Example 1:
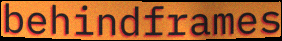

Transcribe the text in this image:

behindframes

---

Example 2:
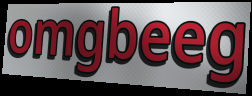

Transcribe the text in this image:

omgbeeg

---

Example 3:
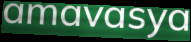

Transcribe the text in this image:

amavasya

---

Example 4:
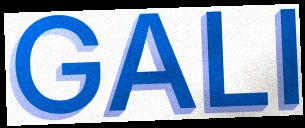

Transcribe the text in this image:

GALI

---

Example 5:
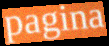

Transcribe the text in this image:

pagina